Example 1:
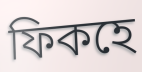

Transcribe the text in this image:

ফিকহে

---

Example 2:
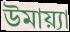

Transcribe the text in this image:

উমায়্যা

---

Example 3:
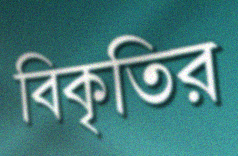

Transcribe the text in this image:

বিকৃতির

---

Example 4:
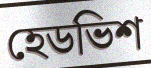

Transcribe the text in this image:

হেডভিশ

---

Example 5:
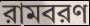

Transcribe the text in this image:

রামবরণ